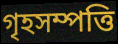
গৃহসম্পত্তি